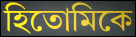
হিতোমিকে